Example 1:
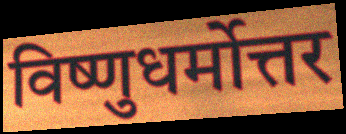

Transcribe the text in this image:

विष्णुधर्मोत्तर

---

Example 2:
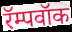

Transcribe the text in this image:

रॅम्पवॉक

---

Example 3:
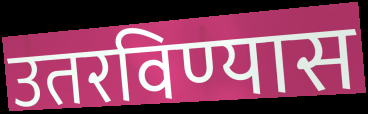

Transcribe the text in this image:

उतरविण्यास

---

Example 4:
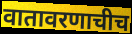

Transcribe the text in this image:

वातावरणाचीच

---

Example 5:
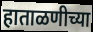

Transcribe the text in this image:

हाताळणीच्या